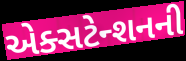
એક્સટેન્શનની